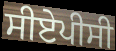
ਸੀਏਪੀਸੀ